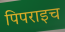
पिपराइच